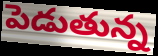
పెడుతున్న